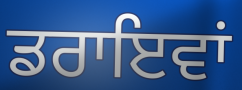
ਡਰਾਇਵਾਂ